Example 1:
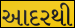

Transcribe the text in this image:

આદરથી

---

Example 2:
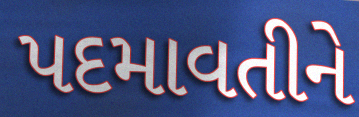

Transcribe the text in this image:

પદમાવતીને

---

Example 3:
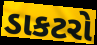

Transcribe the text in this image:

ડાકટરો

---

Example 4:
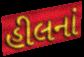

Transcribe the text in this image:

હીલનાં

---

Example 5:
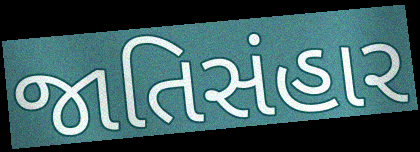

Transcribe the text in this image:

જાતિસંહાર